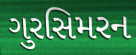
ગુરસિમરન